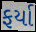
ફર્યા